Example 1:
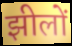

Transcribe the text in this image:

झीलों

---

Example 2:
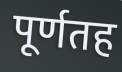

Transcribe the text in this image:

पूर्णतह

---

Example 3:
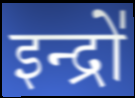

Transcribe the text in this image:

इन्द्रो॑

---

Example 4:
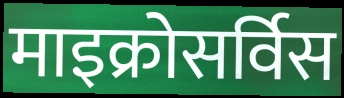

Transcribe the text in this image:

माइक्रोसर्विस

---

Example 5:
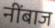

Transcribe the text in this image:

नींबाज